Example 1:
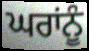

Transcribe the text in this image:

ਘਰਾਂਨੂੰ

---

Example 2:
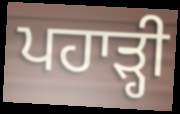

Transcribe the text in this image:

ਪਹਾੜ੍ਹੀ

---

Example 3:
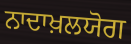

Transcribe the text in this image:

ਨਾਦਾਖ਼ਲਯੋਗ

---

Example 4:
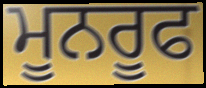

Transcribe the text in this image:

ਮੂਨਰੂਫ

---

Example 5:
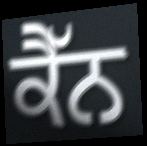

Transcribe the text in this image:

ਕੈੱਨ